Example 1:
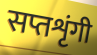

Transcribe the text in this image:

सप्तशृंगी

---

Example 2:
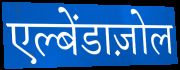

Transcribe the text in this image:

एल्बेंडाज़ोल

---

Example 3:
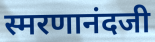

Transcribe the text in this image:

स्मरणानंदजी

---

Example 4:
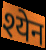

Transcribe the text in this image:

श्येन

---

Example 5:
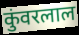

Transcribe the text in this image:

कुंवरलाल